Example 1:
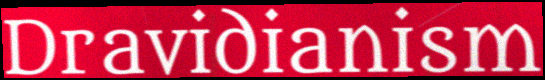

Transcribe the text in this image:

Dravidianism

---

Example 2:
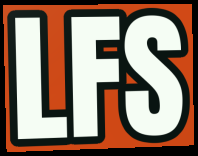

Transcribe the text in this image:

LFS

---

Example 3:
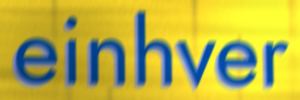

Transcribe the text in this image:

einhver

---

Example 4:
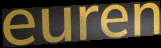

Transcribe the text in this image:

euren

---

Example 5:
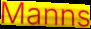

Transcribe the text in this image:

Manns